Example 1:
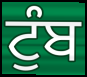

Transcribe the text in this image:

ਟੁੰਬ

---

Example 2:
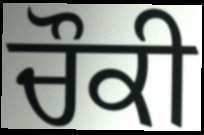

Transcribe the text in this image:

ਚੌਕੀ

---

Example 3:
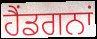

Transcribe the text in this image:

ਹੈਂਡਗਨਾਂ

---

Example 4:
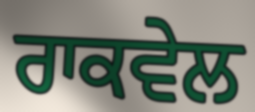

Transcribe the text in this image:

ਰਾਕਵੇਲ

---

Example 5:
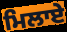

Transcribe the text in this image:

ਮਿਲਾਏ